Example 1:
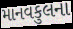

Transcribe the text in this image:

માનવકુલના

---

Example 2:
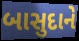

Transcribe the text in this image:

બાસુદાને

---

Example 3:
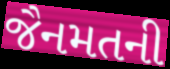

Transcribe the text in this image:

જૈનમતની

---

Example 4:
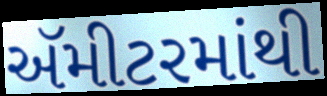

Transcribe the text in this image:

ઍમીટરમાંથી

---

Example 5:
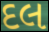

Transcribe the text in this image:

દલ